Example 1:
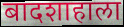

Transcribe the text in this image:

बादशाहाला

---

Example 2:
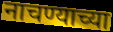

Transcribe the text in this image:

नाचण्याच्या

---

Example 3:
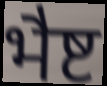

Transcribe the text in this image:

भैष्ट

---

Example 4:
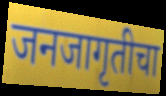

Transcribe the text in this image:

जनजागृतीचा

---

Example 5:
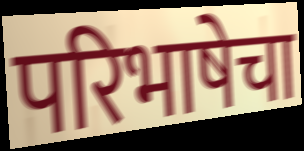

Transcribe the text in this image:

परिभाषेचा